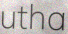
utha